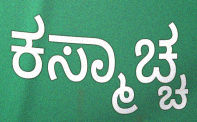
ಕಸ್ಮಾಚ್ಚ